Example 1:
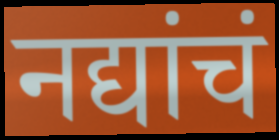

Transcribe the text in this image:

नद्यांचं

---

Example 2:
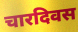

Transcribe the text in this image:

चारदिवस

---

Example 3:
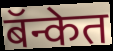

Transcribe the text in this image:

बॅन्केत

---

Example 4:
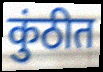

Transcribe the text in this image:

कुंठीत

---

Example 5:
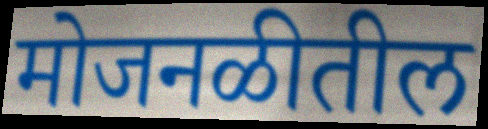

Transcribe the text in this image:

मोजनळीतील